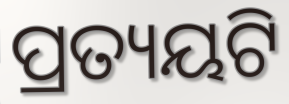
ପ୍ରତ୍ୟୟଟି